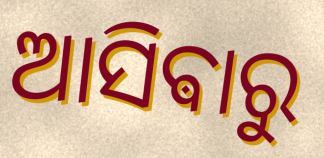
ଆସିଵାରୁ